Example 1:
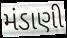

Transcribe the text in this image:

મંડાણી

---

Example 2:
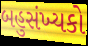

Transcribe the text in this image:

બહુસંખ્યકો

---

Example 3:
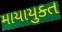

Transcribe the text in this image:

માયાયુક્ત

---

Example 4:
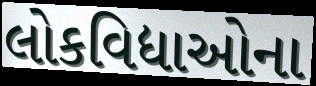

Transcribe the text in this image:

લોકવિદ્યાઓના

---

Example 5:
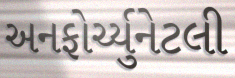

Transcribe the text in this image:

અનફોર્ચ્યુનેટલી